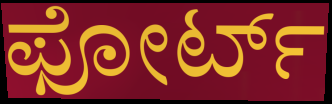
ಫೋರ್ಟ್